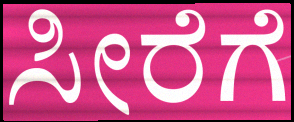
ಸೀರೆಗೆ